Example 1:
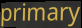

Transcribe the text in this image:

primary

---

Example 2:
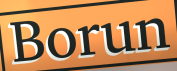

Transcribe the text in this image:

Borun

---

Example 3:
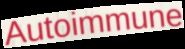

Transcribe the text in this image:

Autoimmune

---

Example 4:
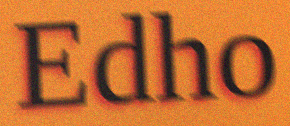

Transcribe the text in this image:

Edho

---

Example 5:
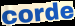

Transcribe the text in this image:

corde